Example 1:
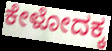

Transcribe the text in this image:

ಕೇಳೋದಕ್ಕ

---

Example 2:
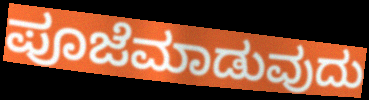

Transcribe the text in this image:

ಪೂಜೆಮಾಡುವುದು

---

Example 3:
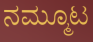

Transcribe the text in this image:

ನಮ್ಮೂಟ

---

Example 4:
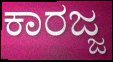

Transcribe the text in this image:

ಕಾರಜ್ಜ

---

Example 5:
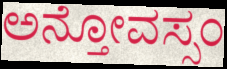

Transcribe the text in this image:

ಅನ್ತೋವಸ್ಸಂ